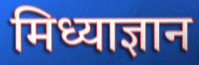
मिध्याज्ञान